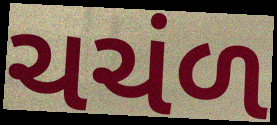
ચચંળ